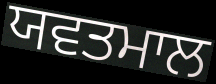
ਯਵਤਮਾਲ